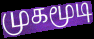
முகமூடி